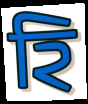
হি